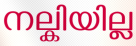
നല്കിയില്ല